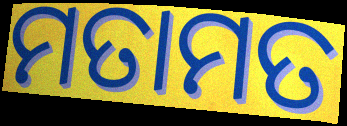
ମତାମତ